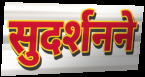
सुदर्शनने